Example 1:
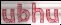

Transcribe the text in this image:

ubhu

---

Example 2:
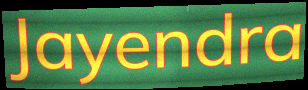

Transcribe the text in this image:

Jayendra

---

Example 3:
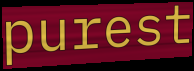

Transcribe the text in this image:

purest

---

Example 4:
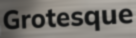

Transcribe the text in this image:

Grotesque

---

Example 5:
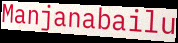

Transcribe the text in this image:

Manjanabailu